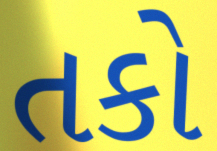
તકો